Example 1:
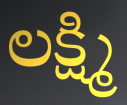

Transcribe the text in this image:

లక్ష్మి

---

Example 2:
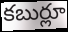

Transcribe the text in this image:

కబుర్లూ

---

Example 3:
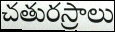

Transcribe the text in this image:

చతురస్రాలు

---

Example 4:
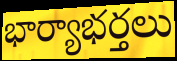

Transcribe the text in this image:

భార్యాభర్తలు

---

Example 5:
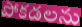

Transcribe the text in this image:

పోకడలను